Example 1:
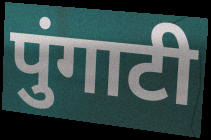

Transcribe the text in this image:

पुंगाटी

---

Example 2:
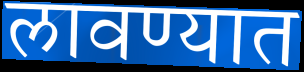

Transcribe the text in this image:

लावण्यात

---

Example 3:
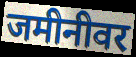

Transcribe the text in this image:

जमीनीवर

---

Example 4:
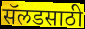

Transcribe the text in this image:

सॅलडसाठी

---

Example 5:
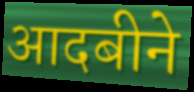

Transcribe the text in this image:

आदबीने